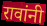
रावांनी